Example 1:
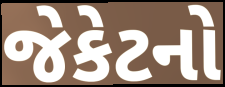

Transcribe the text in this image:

જેકેટનો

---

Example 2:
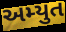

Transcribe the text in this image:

અમ્યુત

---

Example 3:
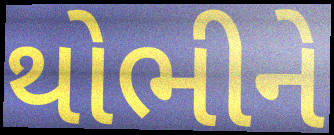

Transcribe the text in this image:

થોભીને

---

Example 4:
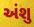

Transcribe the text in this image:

અંશુ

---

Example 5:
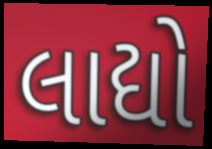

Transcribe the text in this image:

લાદ્યો